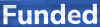
Funded